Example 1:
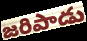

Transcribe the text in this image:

జరిపాడు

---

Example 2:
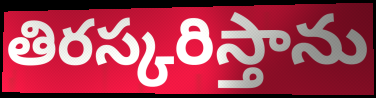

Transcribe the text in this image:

తిరస్కరిస్తాను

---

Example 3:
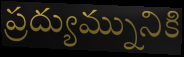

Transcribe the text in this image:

ప్రద్యుమ్నునికి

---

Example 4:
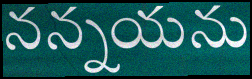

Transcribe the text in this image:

నన్నయను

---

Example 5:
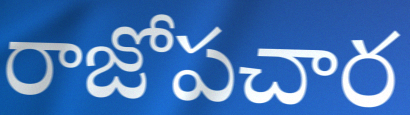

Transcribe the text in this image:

రాజోపచార